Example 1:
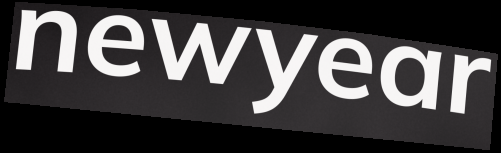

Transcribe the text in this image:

newyear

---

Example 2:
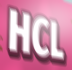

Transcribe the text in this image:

HCL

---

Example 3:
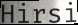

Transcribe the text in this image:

Hirsi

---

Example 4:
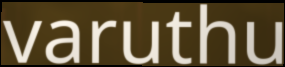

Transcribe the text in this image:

varuthu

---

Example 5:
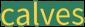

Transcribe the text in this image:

calves